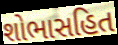
શોભાસહિત